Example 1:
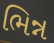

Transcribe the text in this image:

ભિન્ન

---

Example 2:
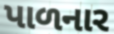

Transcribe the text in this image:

પાળનાર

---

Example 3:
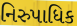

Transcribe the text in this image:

નિરુપાધિક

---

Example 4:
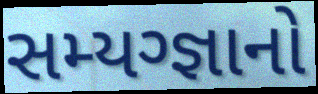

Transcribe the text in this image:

સમ્યગ્જ્ઞાનો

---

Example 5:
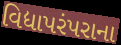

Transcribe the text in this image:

વિદ્યાપરંપરાના